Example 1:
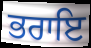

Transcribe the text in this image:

ਭਰਾਇ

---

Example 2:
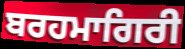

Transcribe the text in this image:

ਬਰਹਮਾਗਿਰੀ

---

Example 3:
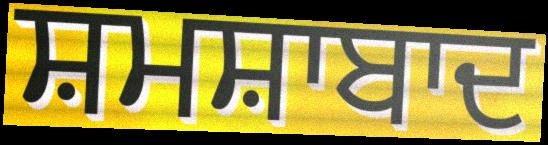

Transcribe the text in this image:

ਸ਼ਮਸ਼ਾਬਾਦ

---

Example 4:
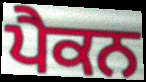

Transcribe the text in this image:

ਪੈਕਨ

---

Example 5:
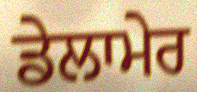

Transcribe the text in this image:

ਡੇਲਾਮੇਰ